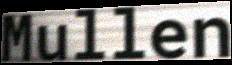
Mullen